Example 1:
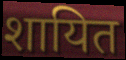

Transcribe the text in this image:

शायित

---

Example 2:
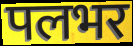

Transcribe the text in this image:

पलभर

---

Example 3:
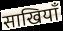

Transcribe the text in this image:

साखियाँ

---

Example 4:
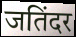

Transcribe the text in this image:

जतिंदर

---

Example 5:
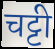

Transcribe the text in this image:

चट्टी